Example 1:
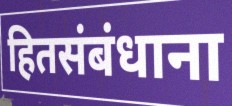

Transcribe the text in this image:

हितसंबंधाना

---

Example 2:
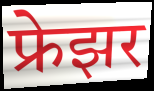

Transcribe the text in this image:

फ्रेझर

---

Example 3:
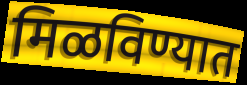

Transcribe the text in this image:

मिळविण्यात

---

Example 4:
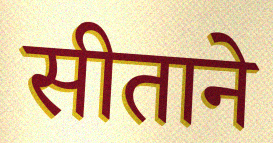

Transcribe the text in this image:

सीताने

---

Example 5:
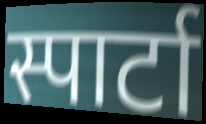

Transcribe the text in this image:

स्पार्टा